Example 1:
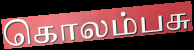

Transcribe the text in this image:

கொலம்பசு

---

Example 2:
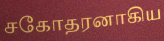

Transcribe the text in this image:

சகோதரனாகிய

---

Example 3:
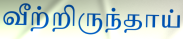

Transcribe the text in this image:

வீற்றிருந்தாய்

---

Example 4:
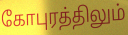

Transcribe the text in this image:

கோபுரத்திலும்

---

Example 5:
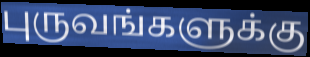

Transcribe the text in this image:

புருவங்களுக்கு